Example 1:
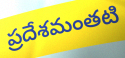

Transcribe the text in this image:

ప్రదేశమంతటి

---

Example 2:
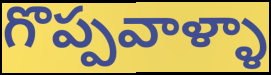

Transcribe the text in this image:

గొప్పవాళ్ళా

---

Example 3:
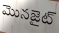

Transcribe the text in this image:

మొనజైట్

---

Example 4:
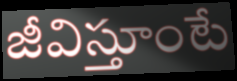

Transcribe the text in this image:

జీవిస్తూంటే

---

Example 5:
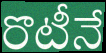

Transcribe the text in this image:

రొటీనే